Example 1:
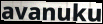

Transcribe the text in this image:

avanuku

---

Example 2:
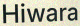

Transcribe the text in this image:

Hiwara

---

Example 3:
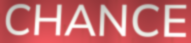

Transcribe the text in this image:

CHANCE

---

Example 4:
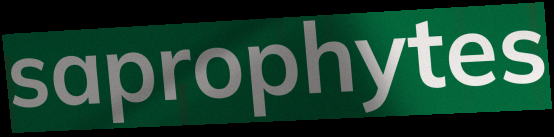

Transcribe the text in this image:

saprophytes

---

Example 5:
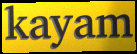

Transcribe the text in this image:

kayam